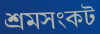
শ্রমসংকট